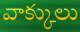
వాక్కులు